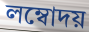
লম্বোদয়